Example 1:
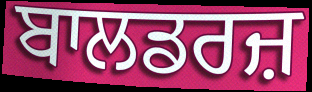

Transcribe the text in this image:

ਬਾਲਡਰਜ਼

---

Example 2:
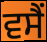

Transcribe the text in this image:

ਵਸੈਂ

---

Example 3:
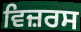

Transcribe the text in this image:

ਵਿਜ਼ਰਸ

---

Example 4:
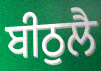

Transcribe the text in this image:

ਬੀਠੁਲੈ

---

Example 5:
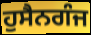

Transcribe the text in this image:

ਹੁਸੈਨਗੰਜ